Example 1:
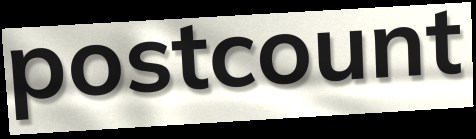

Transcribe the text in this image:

postcount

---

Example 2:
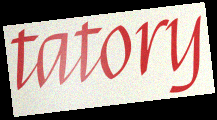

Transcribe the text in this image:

tatory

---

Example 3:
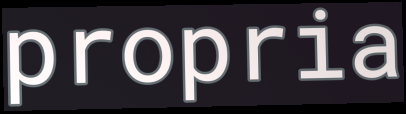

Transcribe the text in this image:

propria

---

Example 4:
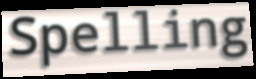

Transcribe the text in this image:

Spelling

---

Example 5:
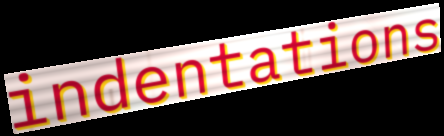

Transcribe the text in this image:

indentations